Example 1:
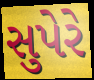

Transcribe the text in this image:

સુપેરે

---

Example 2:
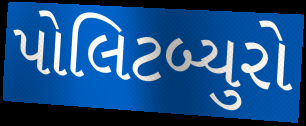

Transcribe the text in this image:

પોલિટબ્યુરો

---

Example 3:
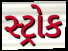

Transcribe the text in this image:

સ્ટ્રોક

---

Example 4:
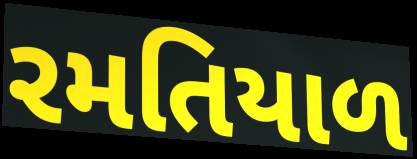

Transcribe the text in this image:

રમતિયાળ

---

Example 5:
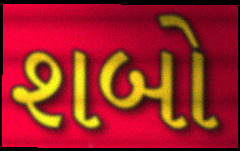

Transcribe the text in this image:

શબો